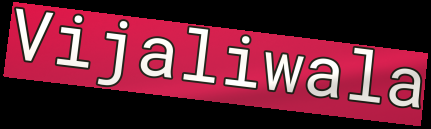
Vijaliwala